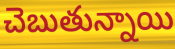
చెబుతున్నాయి